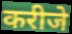
करीजे